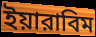
ইয়ারাবিম